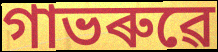
গাভৰুৱে